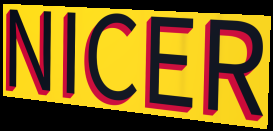
NICER